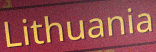
Lithuania